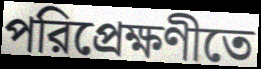
পরিপ্রেক্ষণীতে